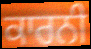
ਕਾਰਨੀ